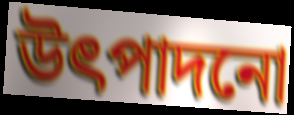
উৎপাদনো